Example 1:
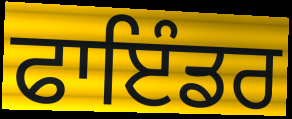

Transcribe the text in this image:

ਫਾਇੰਡਰ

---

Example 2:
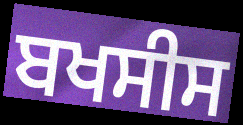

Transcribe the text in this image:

ਬਖਸੀਸ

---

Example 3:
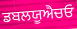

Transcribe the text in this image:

ਡਬਲਯੂਐਚਓ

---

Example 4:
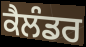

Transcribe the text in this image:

ਕੈਲੰਡਰ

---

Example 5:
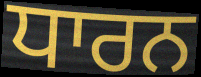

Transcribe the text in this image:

ਧਾਰਨ